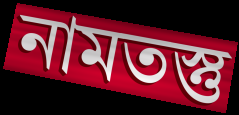
নামতস্তু